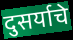
दुसर्याचे